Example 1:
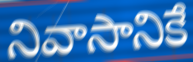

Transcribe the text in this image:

నివాసానికే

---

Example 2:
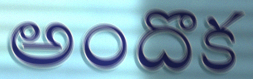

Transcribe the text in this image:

అందొక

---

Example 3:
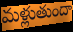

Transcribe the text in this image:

మళ్లుతుందా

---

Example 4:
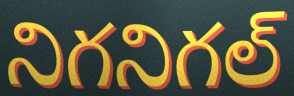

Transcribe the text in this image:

నిగనిగల్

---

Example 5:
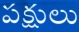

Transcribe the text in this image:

పక్షులు